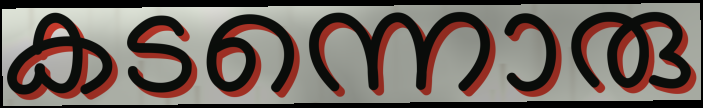
കടന്നൊരു